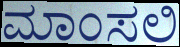
ಮಾಂಸಲಿ